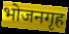
भोजनगृह